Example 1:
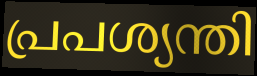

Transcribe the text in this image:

പ്രപശ്യന്തി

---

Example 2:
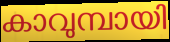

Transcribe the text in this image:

കാവുമ്പായി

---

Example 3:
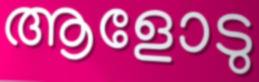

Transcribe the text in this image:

ആളോടു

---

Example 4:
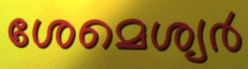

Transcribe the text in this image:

ശേമെശ്യർ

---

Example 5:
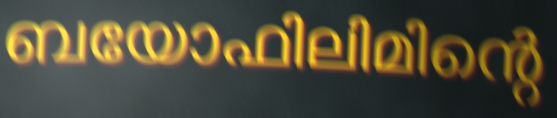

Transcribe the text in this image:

ബയോഫിലിമിന്റെ